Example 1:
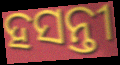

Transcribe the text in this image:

ହସନ୍ତୀ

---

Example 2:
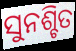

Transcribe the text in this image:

ସୁନଶ୍ଚିତ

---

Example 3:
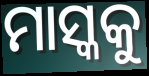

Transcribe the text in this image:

ମାସ୍କକୁ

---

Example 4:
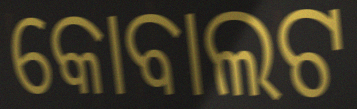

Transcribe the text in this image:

କୋବାଲଟ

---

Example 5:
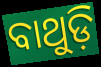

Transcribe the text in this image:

ବାଥୁଡ଼ି